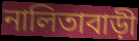
নালিতাবাড়ী